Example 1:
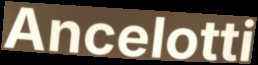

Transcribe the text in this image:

Ancelotti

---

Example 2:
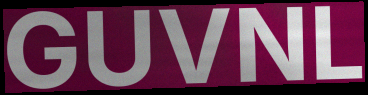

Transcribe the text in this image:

GUVNL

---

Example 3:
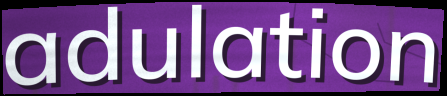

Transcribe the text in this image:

adulation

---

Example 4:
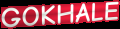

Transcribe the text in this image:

GOKHALE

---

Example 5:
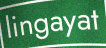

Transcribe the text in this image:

lingayat